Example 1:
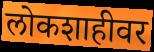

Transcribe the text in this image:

लोकशाहीवर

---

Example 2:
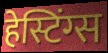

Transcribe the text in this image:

हेस्टिंग्स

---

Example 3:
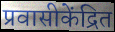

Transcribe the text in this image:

प्रवासीकेंद्रित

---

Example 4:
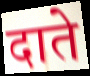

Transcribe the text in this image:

दाते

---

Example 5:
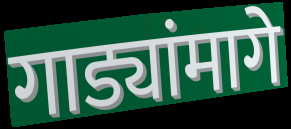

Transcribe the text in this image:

गाड्यांमागे